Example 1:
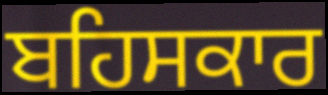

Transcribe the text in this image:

ਬਹਿਸਕਾਰ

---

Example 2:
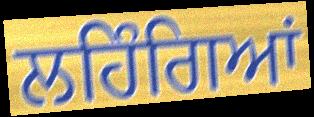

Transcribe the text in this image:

ਲਹਿੰਗਿਆਂ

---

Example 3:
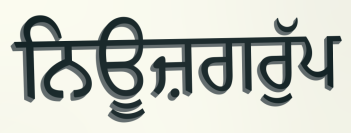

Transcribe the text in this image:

ਨਿਊਜ਼ਗਰੁੱਪ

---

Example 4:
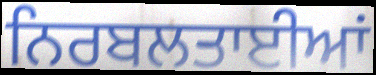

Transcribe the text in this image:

ਨਿਰਬਲਤਾਈਆਂ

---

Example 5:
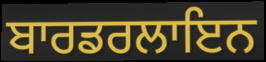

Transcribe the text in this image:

ਬਾਰਡਰਲਾਇਨ